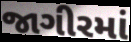
જાગીરમાં